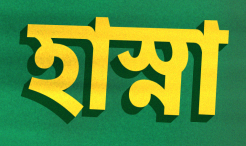
হাস্না